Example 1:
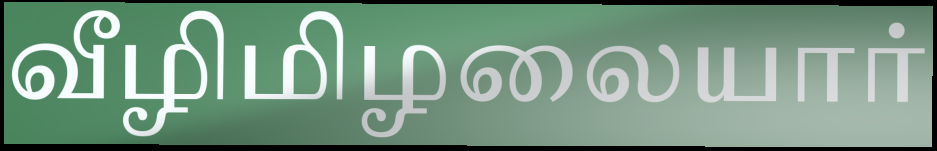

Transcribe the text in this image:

வீழிமிழலையார்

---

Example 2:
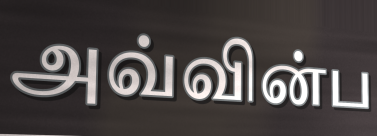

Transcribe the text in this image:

அவ்வின்ப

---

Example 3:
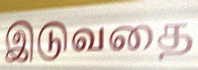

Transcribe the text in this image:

இடுவதை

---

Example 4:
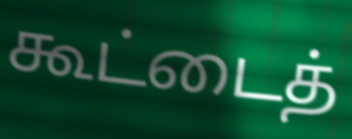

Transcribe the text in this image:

கூட்டைத்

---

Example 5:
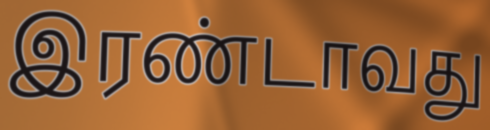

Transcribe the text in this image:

இரண்டாவது